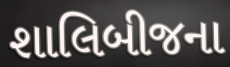
શાલિબીજના